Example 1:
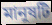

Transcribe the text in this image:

মানুষটি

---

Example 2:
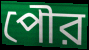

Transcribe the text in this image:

পৌর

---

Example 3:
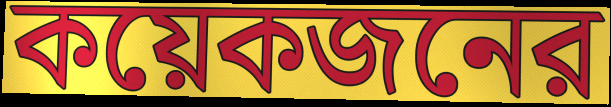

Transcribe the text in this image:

কয়েকজনের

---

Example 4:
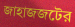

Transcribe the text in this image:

জাহাজজটের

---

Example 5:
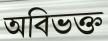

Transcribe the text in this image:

অবিভক্ত